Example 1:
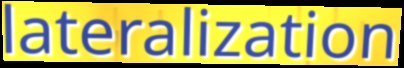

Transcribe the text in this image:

lateralization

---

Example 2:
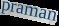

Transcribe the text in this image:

praman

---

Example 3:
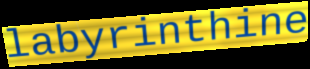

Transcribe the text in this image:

labyrinthine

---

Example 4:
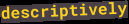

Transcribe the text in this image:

descriptively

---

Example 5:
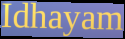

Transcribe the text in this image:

Idhayam